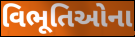
વિભૂતિઓના